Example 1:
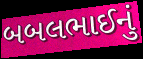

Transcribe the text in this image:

બબલભાઈનું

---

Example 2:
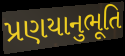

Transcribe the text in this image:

પ્રણયાનુભૂતિ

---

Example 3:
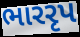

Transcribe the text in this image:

ભારરૃપ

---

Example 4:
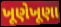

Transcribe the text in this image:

ખૂણેખૂણા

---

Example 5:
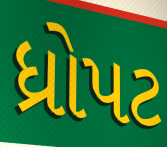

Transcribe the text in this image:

ધ્રોપટ